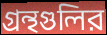
গ্রন্থগুলির